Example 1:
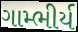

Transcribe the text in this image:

ગામ્ભીર્ય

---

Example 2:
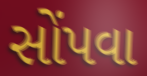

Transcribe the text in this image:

સોંપવા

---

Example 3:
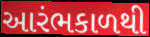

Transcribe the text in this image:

આરંભકાળથી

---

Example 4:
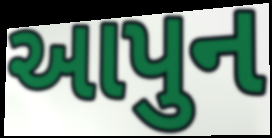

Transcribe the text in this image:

આપુન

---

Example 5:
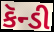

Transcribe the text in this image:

કૅન્ડી